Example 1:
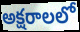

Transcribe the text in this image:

అక్షరాలలో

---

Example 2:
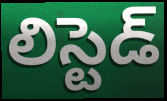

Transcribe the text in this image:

లిస్టెడ్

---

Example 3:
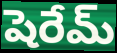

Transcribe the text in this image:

షెరేమ్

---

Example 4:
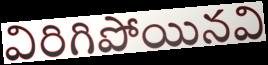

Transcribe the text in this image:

విరిగిపోయినవి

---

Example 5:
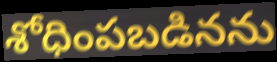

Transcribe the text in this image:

శోధింపబడినను